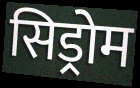
सिड्रोम